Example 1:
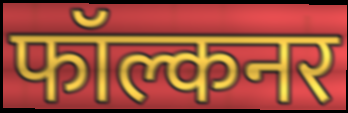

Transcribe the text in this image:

फॉल्कनर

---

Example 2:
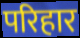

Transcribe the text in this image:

परिहार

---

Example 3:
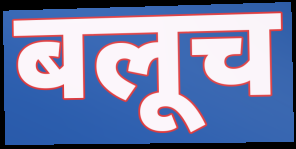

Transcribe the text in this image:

बलूच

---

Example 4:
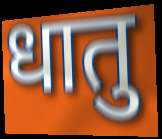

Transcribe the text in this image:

धातु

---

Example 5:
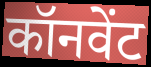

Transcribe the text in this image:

कॉनवेंट